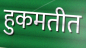
हुकमतीत